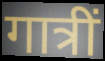
गात्रीं